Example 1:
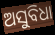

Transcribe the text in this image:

ଅସୁବିଧା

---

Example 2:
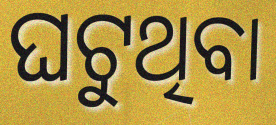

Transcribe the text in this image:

ଘଟୁଥିବା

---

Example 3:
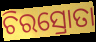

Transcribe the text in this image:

ଚିରସ୍ରୋତା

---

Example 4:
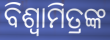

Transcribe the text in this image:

ବିଶ୍ଵାମିତ୍ରଙ୍କ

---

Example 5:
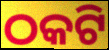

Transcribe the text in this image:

ଠକଟି